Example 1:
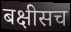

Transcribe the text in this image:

बक्षीसच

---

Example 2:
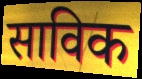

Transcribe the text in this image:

साविक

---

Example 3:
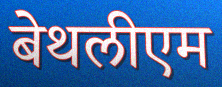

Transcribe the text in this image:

बेथलीएम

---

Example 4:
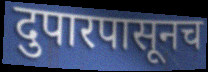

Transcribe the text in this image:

दुपारपासूनच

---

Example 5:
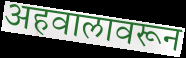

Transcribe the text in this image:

अहवालावरून